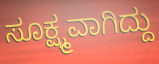
ಸೂಕ್ಷ್ಮವಾಗಿದ್ದು